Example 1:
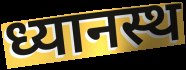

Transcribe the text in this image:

ध्यानस्थ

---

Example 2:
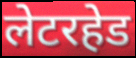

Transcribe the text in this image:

लेटरहेड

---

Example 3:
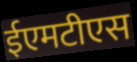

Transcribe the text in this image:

ईएमटीएस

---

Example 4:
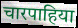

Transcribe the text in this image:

चारपाहिया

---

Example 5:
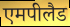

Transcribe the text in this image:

एमपीलैड